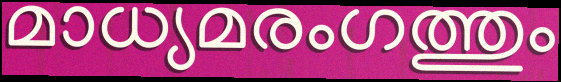
മാധ്യമരംഗത്തും